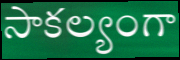
సాకల్యంగా